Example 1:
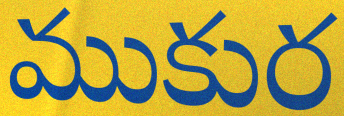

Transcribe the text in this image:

ముకుర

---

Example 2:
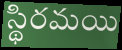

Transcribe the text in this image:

స్థిరమయి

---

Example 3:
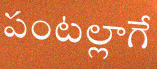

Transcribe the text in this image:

పంటల్లాగే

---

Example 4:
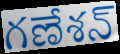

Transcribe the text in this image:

గణేశన్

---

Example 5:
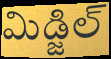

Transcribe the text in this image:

మిడ్జిల్